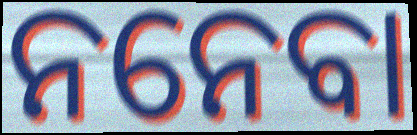
ନନେବା